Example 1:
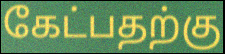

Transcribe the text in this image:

கேட்பதற்கு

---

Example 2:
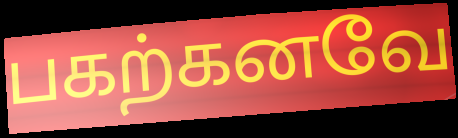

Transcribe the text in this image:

பகற்கனவே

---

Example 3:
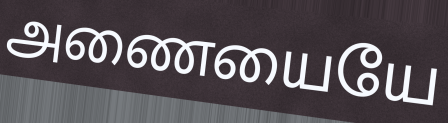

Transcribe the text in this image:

அணையையே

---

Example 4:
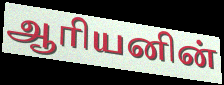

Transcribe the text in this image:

ஆரியனின்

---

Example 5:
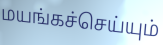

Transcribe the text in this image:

மயங்கச்செய்யும்